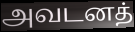
அவடனத்